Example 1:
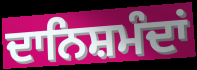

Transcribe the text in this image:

ਦਾਨਿਸ਼ਮੰਦਾਂ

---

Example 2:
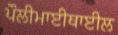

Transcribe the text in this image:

ਪੌਲੀਮਾਈਥਾਈਲ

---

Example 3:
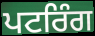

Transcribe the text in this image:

ਪਟਰਿੰਗ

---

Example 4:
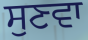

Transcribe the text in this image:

ਸੁਣਵਾ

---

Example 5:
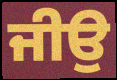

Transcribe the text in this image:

ਜੀਉ